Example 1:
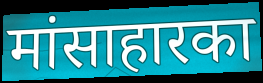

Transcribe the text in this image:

मांसाहारका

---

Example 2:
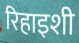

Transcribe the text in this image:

रिहाइशी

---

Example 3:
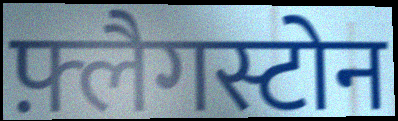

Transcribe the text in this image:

फ़्लैगस्टोन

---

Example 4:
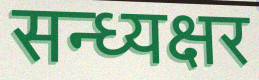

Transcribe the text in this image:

सन्ध्यक्षर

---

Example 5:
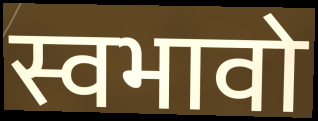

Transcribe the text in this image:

स्वभावो